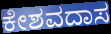
ಕೇಶವದಾಸ